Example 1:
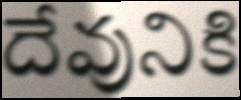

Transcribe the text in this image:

దేవునికి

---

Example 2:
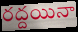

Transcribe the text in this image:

రద్దయినా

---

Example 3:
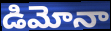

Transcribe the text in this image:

డిమోనా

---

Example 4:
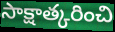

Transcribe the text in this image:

సాక్షాత్కరించి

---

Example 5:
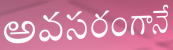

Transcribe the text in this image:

అవసరంగానే